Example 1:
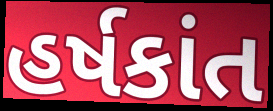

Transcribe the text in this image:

હર્ષકાંત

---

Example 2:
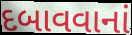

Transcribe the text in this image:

દબાવવાનાં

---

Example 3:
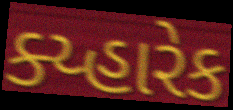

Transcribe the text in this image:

ક્ય્હારેક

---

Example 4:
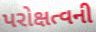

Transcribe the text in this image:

પરોક્ષત્વની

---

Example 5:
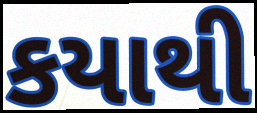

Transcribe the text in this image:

કયાથી